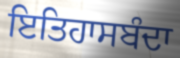
ਇਤਿਹਾਸਬੰਦਾ